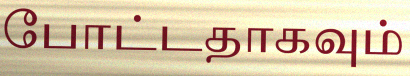
போட்டதாகவும்